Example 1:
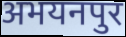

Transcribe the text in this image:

अभयनपुर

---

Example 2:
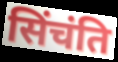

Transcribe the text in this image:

सिंचंति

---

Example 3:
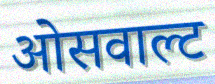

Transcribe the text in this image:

ओसवाल्ट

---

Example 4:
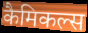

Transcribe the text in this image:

कैमिकल्स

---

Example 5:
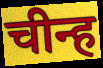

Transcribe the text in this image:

चीन्ह